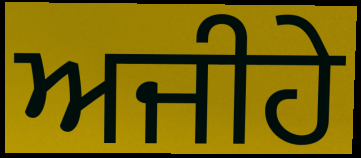
ਅਜੀਹੇ